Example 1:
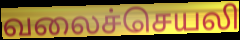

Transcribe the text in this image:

வலைச்செயலி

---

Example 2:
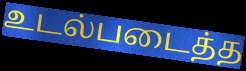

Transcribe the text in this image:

உடல்படைத்த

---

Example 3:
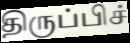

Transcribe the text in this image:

திருப்பிச்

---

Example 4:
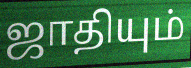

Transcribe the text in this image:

ஜாதியும்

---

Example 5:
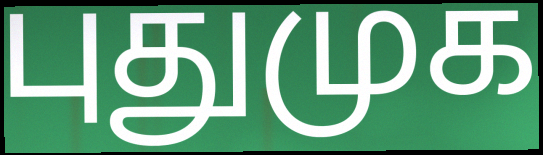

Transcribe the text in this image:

புதுமுக